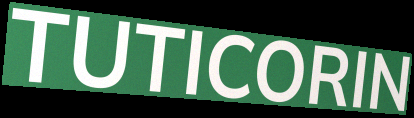
TUTICORIN